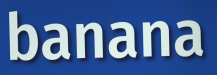
banana